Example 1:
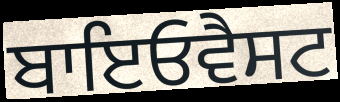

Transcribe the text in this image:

ਬਾਇਓਵੈਸਟ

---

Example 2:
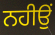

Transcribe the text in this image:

ਨਹੀਉਂ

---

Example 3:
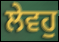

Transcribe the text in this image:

ਲੇਵਹੁ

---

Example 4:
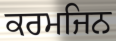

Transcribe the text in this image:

ਕਰਮਜਿਨ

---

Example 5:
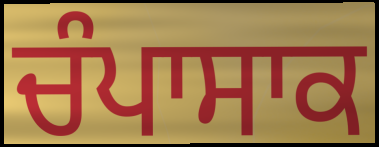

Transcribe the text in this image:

ਚੰਪਾਸਾਕ